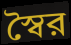
স্বৈর